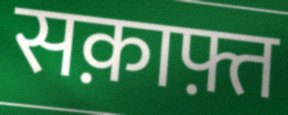
सक़ाफ़्त